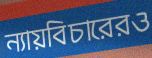
ন্যায়বিচারেরও